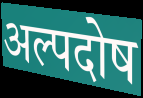
अल्पदोष